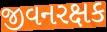
જીવનરક્ષક